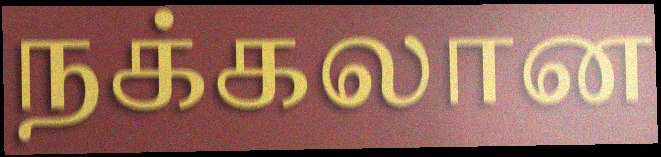
நக்கலான